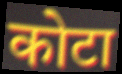
कोटा